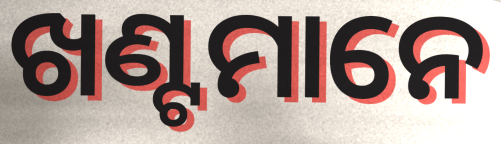
ଖଣ୍ଟମାନେ